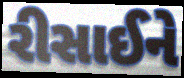
રીસાઈને